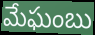
మేఘంబు